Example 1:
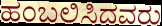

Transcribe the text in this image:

ಹಂಬಲಿಸಿದವರು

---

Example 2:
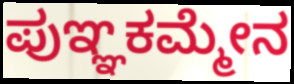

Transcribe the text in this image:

ಪುಞ್ಞಕಮ್ಮೇನ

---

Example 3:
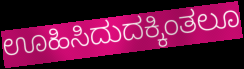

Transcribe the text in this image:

ಊಹಿಸಿದುದಕ್ಕಿಂತಲೂ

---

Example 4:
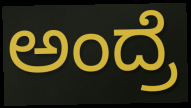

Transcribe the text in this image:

ಅಂದ್ರೆ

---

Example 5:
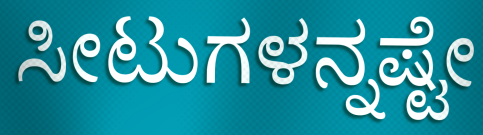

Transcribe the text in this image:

ಸೀಟುಗಳನ್ನಷ್ಟೇ